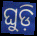
ଘୁଡ଼ି